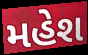
મહેશ